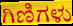
ಗಿಣಿಗಳು